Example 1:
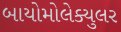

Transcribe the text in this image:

બાયોમોલેક્યુલર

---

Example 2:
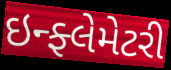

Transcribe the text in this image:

ઇન્ફ્લેમેટરી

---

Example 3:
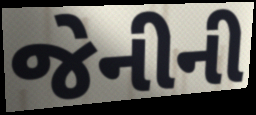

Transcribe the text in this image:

જેનીની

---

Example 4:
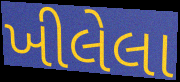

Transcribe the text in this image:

ખીલેલા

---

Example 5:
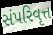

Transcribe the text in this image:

સંપરિવૃત્ત